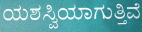
ಯಶಸ್ವಿಯಾಗುತ್ತಿವೆ